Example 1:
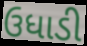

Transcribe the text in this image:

ઉધાડી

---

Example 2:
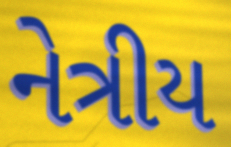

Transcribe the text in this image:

નેત્રીય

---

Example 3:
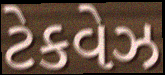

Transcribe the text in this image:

ટેકવેઝ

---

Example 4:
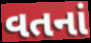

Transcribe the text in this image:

વતનાં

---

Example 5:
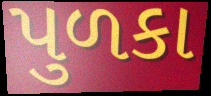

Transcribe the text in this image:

પુળકા